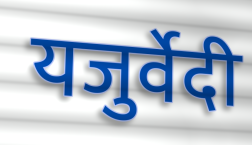
यजुर्वेदी